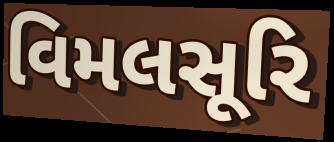
વિમલસૂરિ